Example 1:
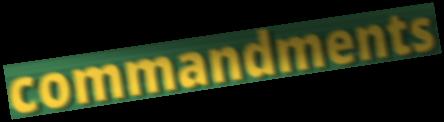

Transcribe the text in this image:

commandments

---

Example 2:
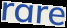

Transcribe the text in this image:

rare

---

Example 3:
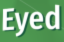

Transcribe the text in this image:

Eyed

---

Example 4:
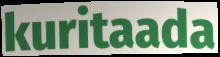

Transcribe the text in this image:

kuritaada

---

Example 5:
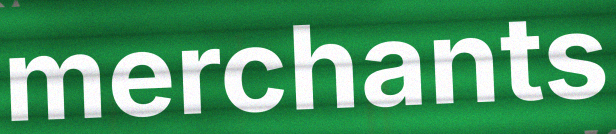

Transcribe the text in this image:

merchants